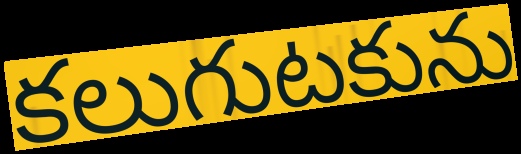
కలుగుటకును